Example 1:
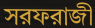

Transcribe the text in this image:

সরফরাজী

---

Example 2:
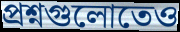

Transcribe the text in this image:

প্রশ্নগুলোতেও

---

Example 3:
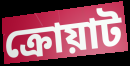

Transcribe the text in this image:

ক্রোয়াট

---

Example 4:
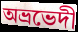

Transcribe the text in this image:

অভ্রভেদী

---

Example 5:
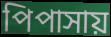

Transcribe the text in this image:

পিপাসায়